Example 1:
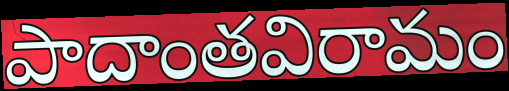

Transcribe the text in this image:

పాదాంతవిరామం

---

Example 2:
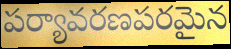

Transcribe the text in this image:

పర్యావరణపరమైన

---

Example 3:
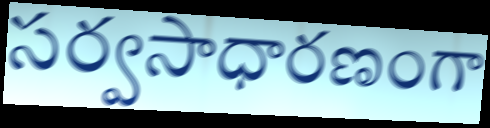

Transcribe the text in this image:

సర్వసాధారణంగా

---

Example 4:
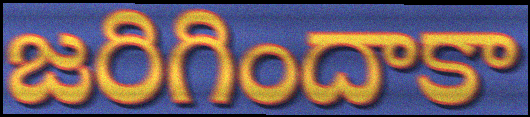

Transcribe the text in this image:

జరిగిందాకా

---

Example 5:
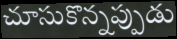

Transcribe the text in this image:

చూసుకొన్నప్పుడు